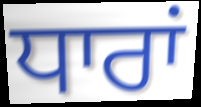
ਧਾਰਾਂ